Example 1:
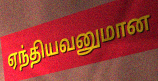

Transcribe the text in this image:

ஏந்தியவனுமான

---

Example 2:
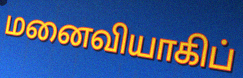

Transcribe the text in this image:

மனைவியாகிப்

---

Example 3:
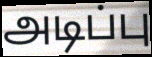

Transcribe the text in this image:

அடிப்பு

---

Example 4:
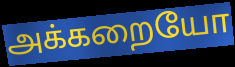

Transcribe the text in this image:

அக்கறையோ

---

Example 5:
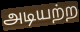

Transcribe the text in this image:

அடியற்ற